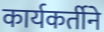
कार्यकर्तीने